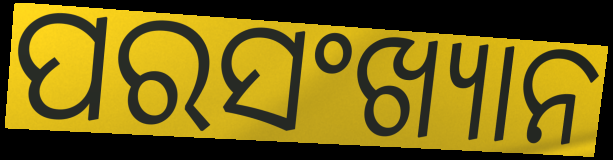
ପରସଂଖ୍ୟାନ